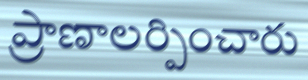
ప్రాణాలర్పించారు